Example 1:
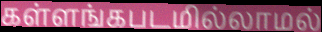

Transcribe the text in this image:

கள்ளங்கபடமில்லாமல்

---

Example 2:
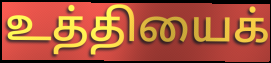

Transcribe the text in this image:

உத்தியைக்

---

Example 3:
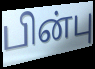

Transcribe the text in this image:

பின்பு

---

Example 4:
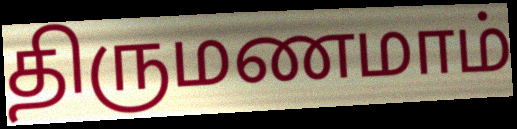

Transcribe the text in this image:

திருமணமாம்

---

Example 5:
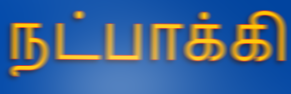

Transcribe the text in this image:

நட்பாக்கி